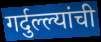
गर्दुल्ल्यांची